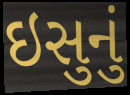
ઇસુનું